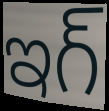
ఇగ్